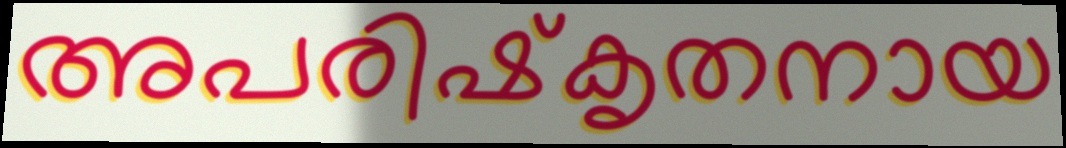
അപരിഷ്‌കൃതനായ